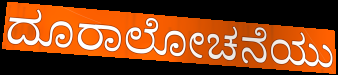
ದೂರಾಲೋಚನೆಯು